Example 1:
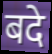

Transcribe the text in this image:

बदे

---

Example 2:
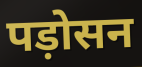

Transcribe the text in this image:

पड़ोसन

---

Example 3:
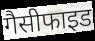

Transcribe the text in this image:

गैसीफाइड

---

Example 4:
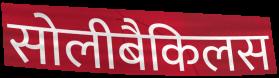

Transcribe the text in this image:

सोलीबैकिलस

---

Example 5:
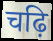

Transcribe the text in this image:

चढ़ि